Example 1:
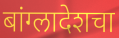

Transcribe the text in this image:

बांग्लादेशचा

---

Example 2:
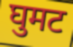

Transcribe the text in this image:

घुमट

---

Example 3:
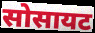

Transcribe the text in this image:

सोसायट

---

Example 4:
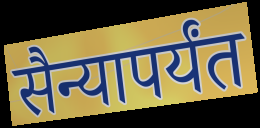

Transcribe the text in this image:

सैन्यापर्यंत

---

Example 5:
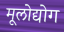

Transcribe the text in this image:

मूलोद्योग